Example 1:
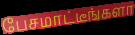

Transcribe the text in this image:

பேசமாட்டீங்களா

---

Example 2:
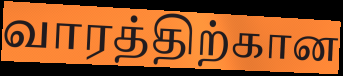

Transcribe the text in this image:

வாரத்திற்கான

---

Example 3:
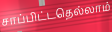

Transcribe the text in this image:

சாப்பிட்டதெல்லாம்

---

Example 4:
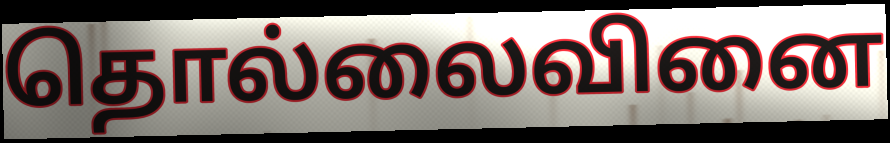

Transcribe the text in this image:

தொல்லைவினை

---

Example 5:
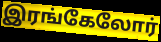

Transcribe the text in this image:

இரங்கேலோர்